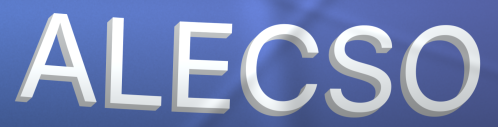
ALECSO